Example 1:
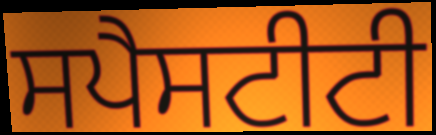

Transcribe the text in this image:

ਸਪੈਸਟੀਟੀ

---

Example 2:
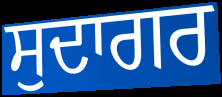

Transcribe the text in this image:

ਸੁਦਾਗਰ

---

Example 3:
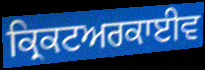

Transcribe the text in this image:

ਕ੍ਰਿਕਟਅਰਕਾਈਵ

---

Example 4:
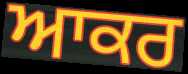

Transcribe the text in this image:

ਆਕਰ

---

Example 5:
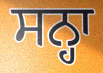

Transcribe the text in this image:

ਸਨ੍ਹਾ